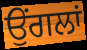
ਉੰਗਲਾਂ